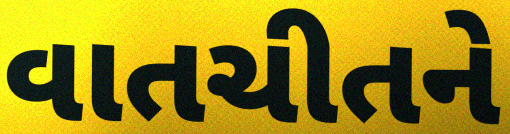
વાતચીતને